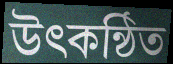
উৎকন্ঠিত